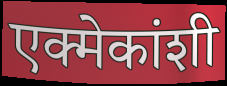
एक्मेकांशी